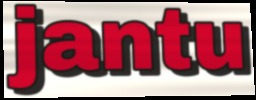
jantu